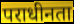
पराधीनता